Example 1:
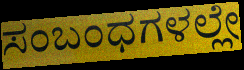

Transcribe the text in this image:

ಸಂಬಂಧಗಳಲ್ಲೇ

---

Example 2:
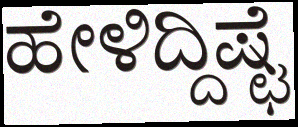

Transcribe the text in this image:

ಹೇಳಿದ್ದಿಷ್ಟೆ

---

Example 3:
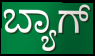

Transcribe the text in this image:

ಬ್ಯಾಗ್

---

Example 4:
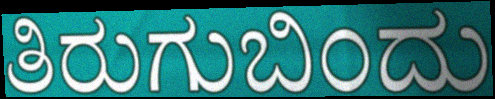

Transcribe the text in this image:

ತಿರುಗುಬಿಂದು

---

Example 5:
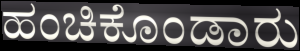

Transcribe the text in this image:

ಹಂಚಿಕೊಂಡಾರು